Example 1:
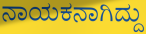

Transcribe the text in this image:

ನಾಯಕನಾಗಿದ್ದು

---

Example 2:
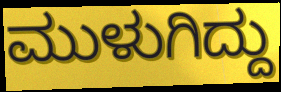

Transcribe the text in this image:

ಮುಳುಗಿದ್ದು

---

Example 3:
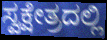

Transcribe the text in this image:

ಸ್ವಕ್ಷೇತ್ರದಲ್ಲಿ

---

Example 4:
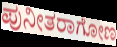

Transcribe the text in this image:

ಪುನೀತರಾಗೋಣ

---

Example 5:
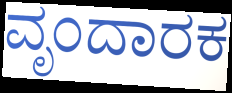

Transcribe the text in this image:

ವೃಂದಾರಕ